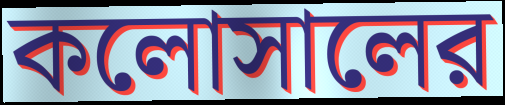
কলোসালের